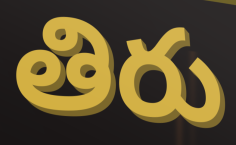
తిరు